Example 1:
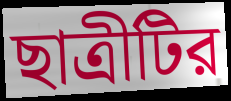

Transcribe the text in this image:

ছাত্রীটির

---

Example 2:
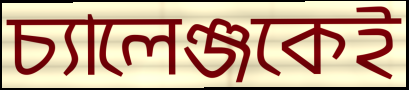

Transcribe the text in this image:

চ্যালেঞ্জকেই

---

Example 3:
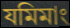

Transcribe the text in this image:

যমিমাং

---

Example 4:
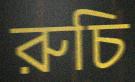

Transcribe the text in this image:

রুচি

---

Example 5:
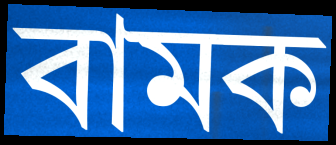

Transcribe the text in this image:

বামক